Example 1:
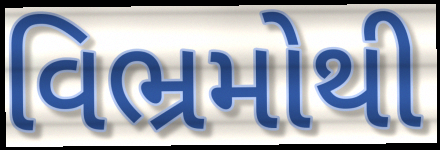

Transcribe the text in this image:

વિભ્રમોથી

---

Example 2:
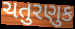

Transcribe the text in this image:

ચતુરણુક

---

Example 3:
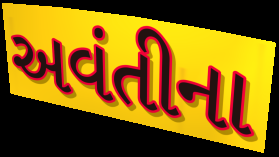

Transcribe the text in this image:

અવંતીના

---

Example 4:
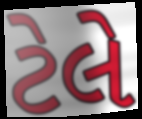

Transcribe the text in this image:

ટેલે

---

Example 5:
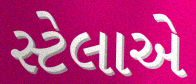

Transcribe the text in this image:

સ્ટેલાએ